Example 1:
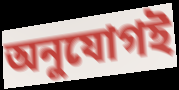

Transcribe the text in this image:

অনুযোগই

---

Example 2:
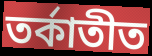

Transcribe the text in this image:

তর্কাতীত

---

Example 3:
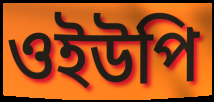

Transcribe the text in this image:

ওইউপি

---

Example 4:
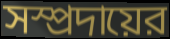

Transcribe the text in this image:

সস্প্রদায়ের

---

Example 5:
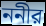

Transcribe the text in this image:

ননীর